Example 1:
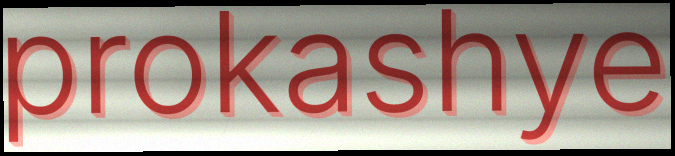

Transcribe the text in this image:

prokashye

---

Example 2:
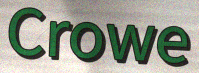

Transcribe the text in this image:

Crowe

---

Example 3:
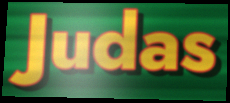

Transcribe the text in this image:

Judas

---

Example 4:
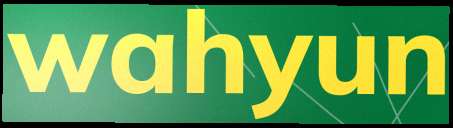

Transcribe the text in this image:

wahyun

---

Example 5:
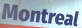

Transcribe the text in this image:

Montreal